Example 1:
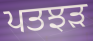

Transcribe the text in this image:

ਪਤਝਡ਼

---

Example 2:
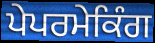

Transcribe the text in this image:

ਪੇਪਰਮੇਕਿੰਗ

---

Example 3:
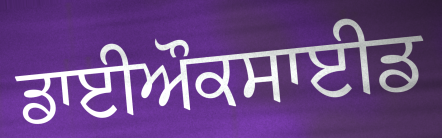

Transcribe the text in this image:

ਡਾਈਔਕਸਾਈਡ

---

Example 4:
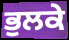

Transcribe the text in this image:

ਭੁਲਕੇ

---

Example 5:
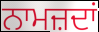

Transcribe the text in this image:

ਨਾਮਜ਼ਦਾਂ